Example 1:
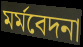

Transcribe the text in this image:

মর্মবেদনা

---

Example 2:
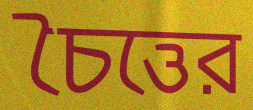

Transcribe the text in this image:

চৈত্তের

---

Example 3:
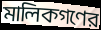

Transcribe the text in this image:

মালিকগণের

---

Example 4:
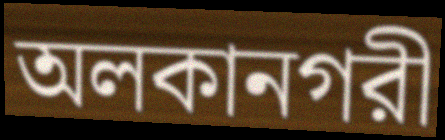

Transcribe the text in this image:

অলকানগরী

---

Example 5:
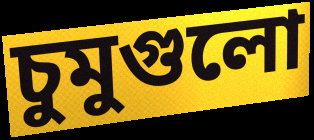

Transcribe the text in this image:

চুমুগুলো